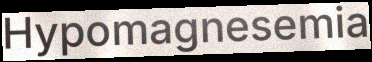
Hypomagnesemia